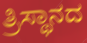
ತ್ರಿಸ್ಥಾನದ